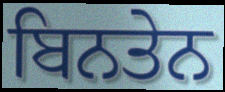
ਬਿਨਤੇਨ